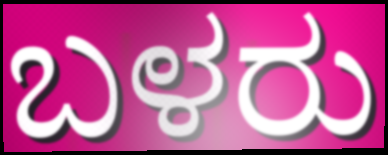
ಬಳರು